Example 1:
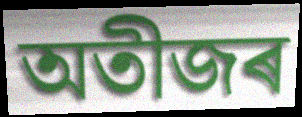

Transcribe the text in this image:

অতীজৰ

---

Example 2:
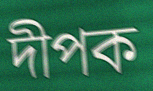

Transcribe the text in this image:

দীপক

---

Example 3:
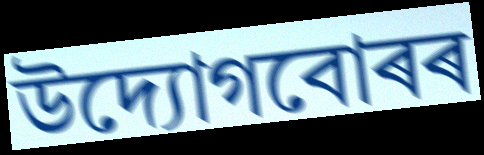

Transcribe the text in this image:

উদ্যোগবোৰৰ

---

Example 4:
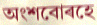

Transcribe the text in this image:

অংশবোৰহে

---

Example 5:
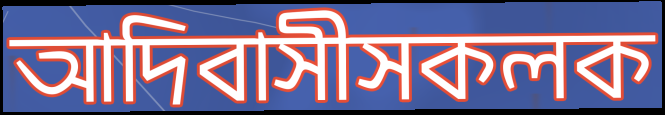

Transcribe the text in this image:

আদিবাসীসকলক